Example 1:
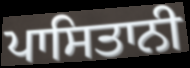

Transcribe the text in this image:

ਪਾਸਿਤਾਨੀ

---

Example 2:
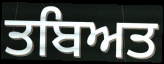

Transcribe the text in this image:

ਤਬਿਅਤ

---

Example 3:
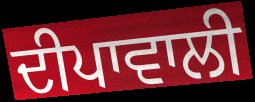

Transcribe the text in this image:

ਦੀਪਾਵਾਲੀ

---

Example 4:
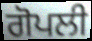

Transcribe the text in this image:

ਗੋਪਲੀ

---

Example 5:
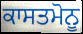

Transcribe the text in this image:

ਕਾਸਤਮੋਨੂ